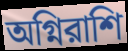
অগ্নিরাশি